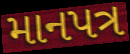
માનપત્ર